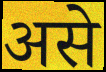
असे